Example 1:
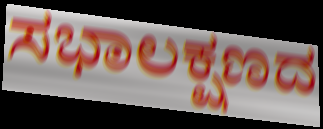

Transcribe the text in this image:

ಸಭಾಲಕ್ಷಣದ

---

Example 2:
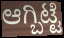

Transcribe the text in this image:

ಆಗ್ಬಿಟ್ಟೆ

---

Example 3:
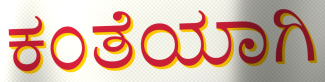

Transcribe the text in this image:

ಕಂತೆಯಾಗಿ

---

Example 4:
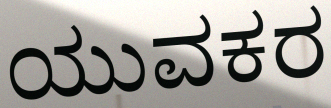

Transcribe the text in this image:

ಯುವಕರ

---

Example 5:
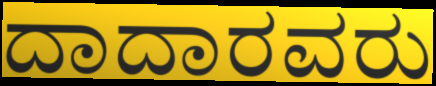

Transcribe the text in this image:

ದಾದಾರವರು